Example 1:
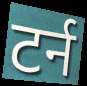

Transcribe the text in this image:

टर्न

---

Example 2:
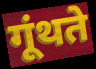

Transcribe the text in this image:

गूंथते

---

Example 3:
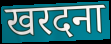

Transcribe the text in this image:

खरदना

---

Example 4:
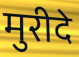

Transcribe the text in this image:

मुरीदे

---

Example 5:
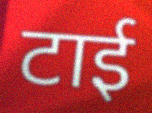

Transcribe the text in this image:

टाई